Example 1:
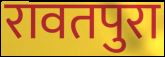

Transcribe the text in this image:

रावतपुरा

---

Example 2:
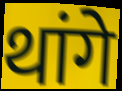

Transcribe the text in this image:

थांगे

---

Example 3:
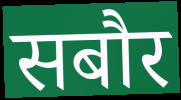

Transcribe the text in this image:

सबौर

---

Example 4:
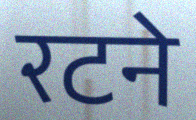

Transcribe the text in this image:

रटने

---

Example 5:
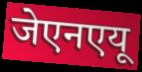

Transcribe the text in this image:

जेएनएयू